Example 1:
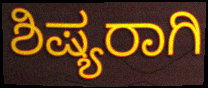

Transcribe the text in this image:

ಶಿಷ್ಯರಾಗಿ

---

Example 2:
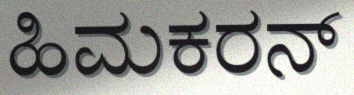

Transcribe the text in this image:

ಹಿಮಕರನ್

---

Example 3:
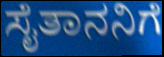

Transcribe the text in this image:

ಸೈತಾನನಿಗೆ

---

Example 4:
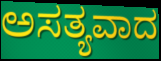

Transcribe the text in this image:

ಅಸತ್ಯವಾದ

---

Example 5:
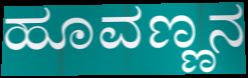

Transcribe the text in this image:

ಹೂವಣ್ಣನ